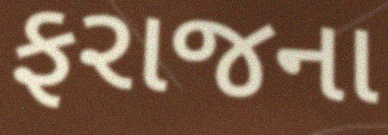
ફરાજના